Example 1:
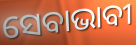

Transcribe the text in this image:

ସେବାଭାବୀ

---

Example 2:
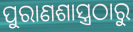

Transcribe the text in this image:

ପୁରାଣଶାସ୍ତ୍ରଠାରୁ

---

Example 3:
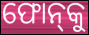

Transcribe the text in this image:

ଫୋନ୍‌କୁ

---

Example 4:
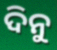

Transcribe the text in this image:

ଦିନୁ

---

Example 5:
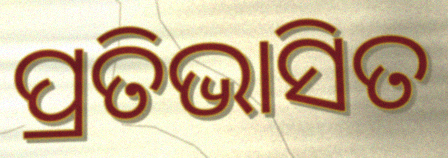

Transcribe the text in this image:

ପ୍ରତିଭାସିତ